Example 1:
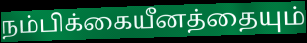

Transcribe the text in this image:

நம்பிக்கையீனத்தையும்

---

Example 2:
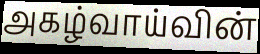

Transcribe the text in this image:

அகழ்வாய்வின்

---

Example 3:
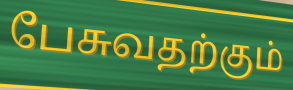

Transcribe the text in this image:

பேசுவதற்கும்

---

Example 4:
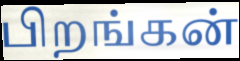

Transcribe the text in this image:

பிறங்கன்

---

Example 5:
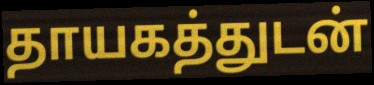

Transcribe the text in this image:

தாயகத்துடன்